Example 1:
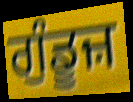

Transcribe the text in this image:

ਗੁੰਡੂਜ਼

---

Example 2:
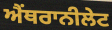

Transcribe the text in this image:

ਐਂਥਰਾਨੀਲੇਟ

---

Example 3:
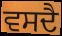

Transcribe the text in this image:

ਵਸਦੈ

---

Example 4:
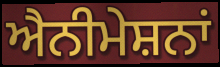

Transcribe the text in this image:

ਐਨੀਮੇਸ਼ਨਾਂ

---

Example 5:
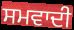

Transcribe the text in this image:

ਸਮਵਾਦੀ